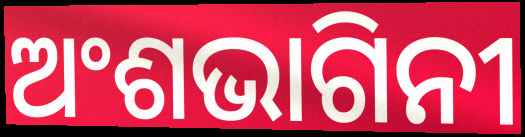
ଅଂଶଭାଗିନୀ